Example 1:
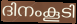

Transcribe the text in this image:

ദിനംകൂടി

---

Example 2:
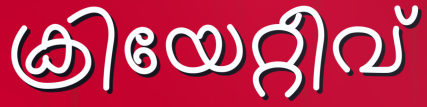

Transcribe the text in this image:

ക്രിയേറ്റീവ്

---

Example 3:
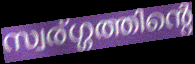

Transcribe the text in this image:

സ്വര്ഗ്ഗത്തിന്റെ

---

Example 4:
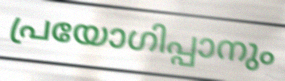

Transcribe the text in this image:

പ്രയോഗിപ്പാനും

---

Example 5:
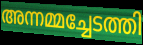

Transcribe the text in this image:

അന്നമ്മച്ചേടത്തി